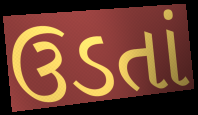
ઉડતાં